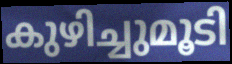
കുഴിച്ചുമൂടി